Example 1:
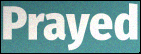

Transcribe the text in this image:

Prayed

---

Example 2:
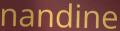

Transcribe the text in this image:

nandine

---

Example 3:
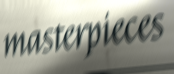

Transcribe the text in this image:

masterpieces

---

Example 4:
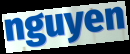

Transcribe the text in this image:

nguyen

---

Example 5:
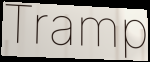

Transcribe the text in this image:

Tramp